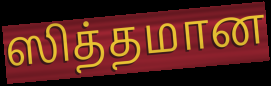
ஸித்தமான